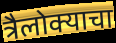
त्रैलोक्याचा